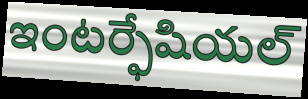
ఇంటర్ఫేషియల్